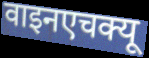
वाइनएचक्यू